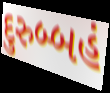
દુરુબ્બહં